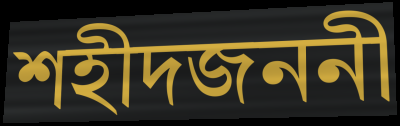
শহীদজননী